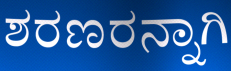
ಶರಣರನ್ನಾಗಿ